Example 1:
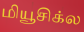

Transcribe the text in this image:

மியூசிக்ல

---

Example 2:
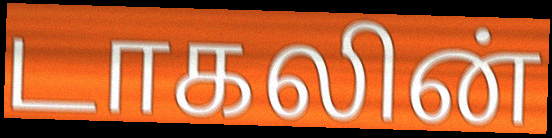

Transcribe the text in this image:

டாகலின்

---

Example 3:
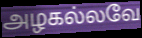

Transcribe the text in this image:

அழகல்லவே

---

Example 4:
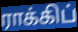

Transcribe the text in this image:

ராக்கிப்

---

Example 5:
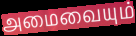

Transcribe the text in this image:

அமைவையும்